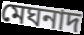
মেঘনাদ